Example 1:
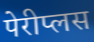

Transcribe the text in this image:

पेरीप्लस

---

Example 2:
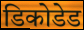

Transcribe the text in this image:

डिकोडेड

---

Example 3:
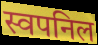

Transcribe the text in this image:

स्वपनिल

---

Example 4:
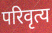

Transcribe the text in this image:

परिवृत्य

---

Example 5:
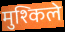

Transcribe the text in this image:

मुश्किले